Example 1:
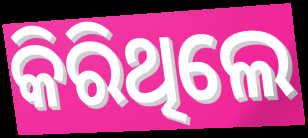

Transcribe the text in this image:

କିରିଥିଲେ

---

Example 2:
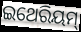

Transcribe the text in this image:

ଇଥେରିୟମ୍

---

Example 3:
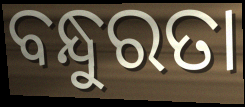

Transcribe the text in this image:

ବନ୍ଧୁରତା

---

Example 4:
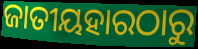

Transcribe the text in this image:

ଜାତୀୟହାରଠାରୁ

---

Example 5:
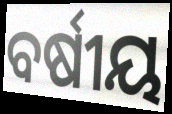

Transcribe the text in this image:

ବର୍ଷୀୟ